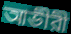
আভীরী